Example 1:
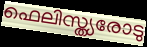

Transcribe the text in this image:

ഫെലിസ്ത്യരോടു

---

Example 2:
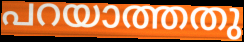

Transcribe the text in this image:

പറയാത്തതു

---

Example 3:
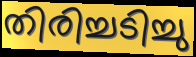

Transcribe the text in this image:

തിരിച്ചടിച്ചു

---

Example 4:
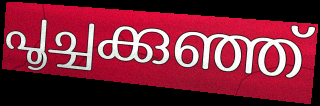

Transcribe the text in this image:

പൂച്ചക്കുഞ്ഞ്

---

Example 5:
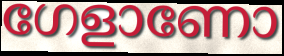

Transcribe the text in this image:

ഗേളാണോ